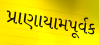
પ્રાણાયામપૂર્વક